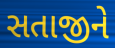
સતાજીને